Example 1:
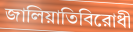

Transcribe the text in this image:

জালিয়াতিবিরোধী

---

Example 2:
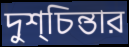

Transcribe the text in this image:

দুশ্‌চিন্তার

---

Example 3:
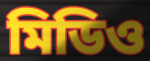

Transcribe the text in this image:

মিডিও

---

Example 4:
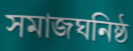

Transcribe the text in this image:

সমাজঘনিষ্ঠ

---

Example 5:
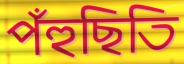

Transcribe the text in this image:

পঁহুছিতি